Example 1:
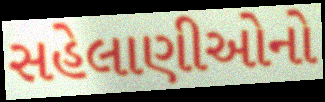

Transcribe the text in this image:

સહેલાણીઓનો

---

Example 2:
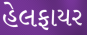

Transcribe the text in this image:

હેલફાયર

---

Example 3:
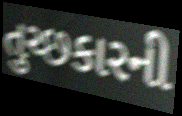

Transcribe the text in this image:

તુચ્છકારની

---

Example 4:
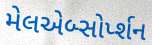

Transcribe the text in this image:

મેલએબ્સોર્પ્શન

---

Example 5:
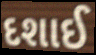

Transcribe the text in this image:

દશાઈ